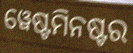
ୱେଷ୍ଟମିନଷ୍ଟର